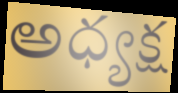
అధ్యక్ష